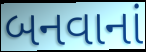
બનવાનાં